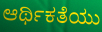
ಆರ್ಥಿಕತೆಯು